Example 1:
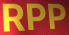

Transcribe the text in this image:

RPP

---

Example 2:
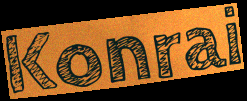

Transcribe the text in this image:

Konrai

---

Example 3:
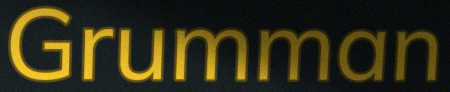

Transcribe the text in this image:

Grumman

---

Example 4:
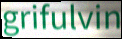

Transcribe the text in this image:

grifulvin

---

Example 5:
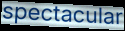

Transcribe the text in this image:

spectacular